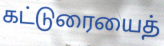
கட்டுரையைத்